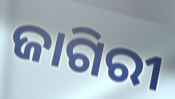
ଜାଗିରୀ